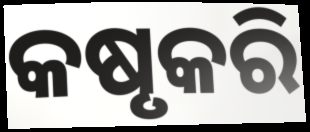
କଷୃକରି